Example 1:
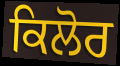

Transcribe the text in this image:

ਕਿਲੋਰ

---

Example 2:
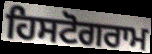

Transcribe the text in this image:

ਹਿਸਟੋਗਰਾਮ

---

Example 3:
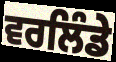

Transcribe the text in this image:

ਵਰਲਿੰਡੇ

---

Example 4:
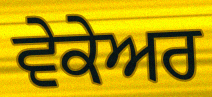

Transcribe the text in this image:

ਵੇਕੇਅਰ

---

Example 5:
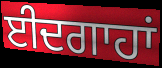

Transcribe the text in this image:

ਈਦਗਾਹਾਂ